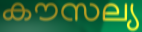
കൗസല്യ